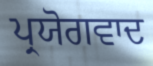
ਪ੍ਰਯੋਗਵਾਦ